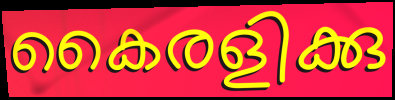
കൈരളിക്കു